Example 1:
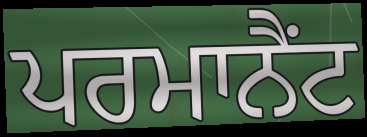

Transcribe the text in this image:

ਪਰਮਾਨੈਂਟ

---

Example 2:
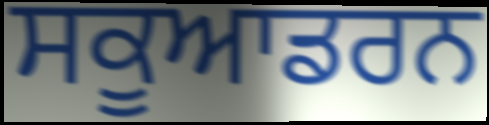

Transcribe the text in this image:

ਸਕੂਆਡਰਨ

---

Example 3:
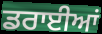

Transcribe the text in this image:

ਡਰਾਈਆਂ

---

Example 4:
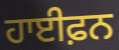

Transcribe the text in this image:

ਹਾਈਫ਼ਨ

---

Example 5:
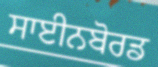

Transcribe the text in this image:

ਸਾਈਨਬੋਰਡ